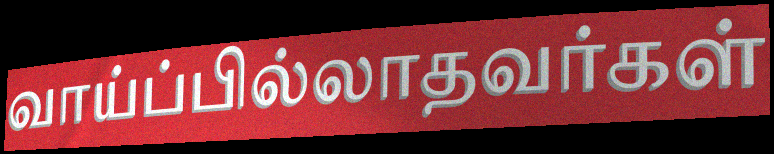
வாய்ப்பில்லாதவர்கள்